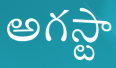
అగస్టా